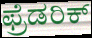
ಫ್ರೆಡರಿಕ್